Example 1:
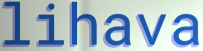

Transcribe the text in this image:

lihava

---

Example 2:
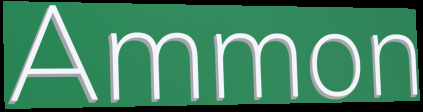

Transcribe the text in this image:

Ammon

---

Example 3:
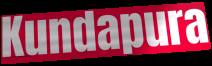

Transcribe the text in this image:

Kundapura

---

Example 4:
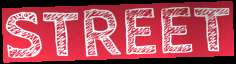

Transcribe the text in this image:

STREET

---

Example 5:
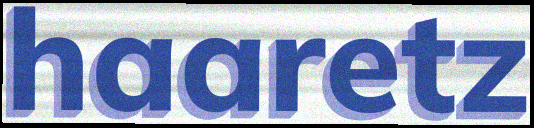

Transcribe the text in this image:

haaretz